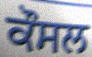
ਕੌਸਲ